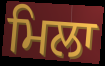
ਮਿਲਾ